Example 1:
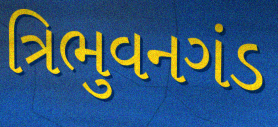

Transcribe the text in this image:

ત્રિભુવનગંડ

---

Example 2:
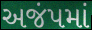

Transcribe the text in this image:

અજંપમાં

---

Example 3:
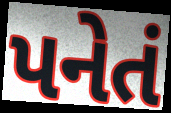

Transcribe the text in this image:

પનેતં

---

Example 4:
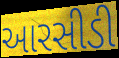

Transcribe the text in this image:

આરસીડી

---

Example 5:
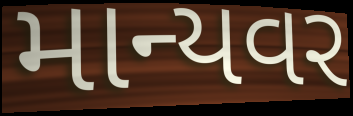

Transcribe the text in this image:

માન્યવર